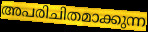
അപരിചിതമാക്കുന്ന